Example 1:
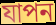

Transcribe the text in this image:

যাপন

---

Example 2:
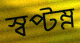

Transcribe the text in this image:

স্বপ্টম্ন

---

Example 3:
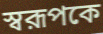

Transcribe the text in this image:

স্বরূপকে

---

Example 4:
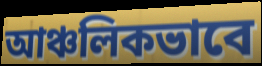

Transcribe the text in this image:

আঞ্চলিকভাবে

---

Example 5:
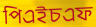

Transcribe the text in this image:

পিএইচএফ